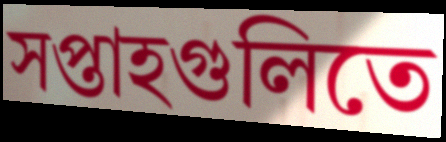
সপ্তাহগুলিতে